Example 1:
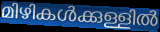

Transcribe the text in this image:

മിഴികൾക്കുള്ളിൽ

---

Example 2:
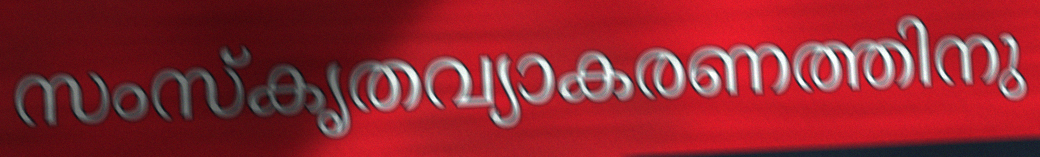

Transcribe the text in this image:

സംസ്കൃതവ്യാകരണത്തിനു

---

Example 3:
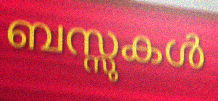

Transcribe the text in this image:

ബസ്സുകൾ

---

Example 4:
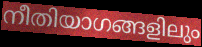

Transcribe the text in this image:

നീതിയാഗങ്ങളിലും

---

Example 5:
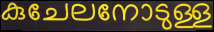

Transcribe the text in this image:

കുചേലനോടുള്ള